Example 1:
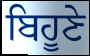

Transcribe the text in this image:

ਬਿਹੂਣੇ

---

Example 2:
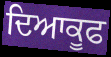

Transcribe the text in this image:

ਦਿਆਕੂਫ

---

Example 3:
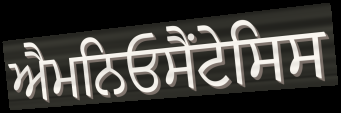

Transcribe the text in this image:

ਐਮਨਿਓਸੈਂਟੇਸਿਸ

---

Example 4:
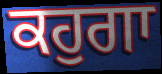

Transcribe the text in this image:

ਕਹੁਗਾ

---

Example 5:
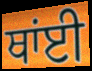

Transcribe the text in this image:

ਥਾਂਈ